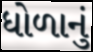
ધોળાનું